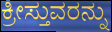
ಕ್ರೀಸ್ತುವರನ್ನು